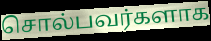
சொல்பவர்களாக